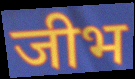
जीभ